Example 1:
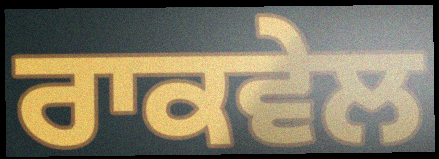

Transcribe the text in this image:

ਰਾਕਵੇਲ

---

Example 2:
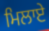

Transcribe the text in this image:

ਮਿਲਾਏ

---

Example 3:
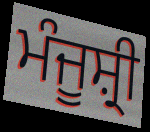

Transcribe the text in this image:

ਮੰਜੂਸ਼੍ਰੀ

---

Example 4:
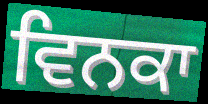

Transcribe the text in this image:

ਵਿਨਕਾ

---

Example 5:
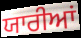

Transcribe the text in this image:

ਯਾਰੀਆਂ